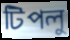
টিপলু